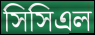
সিসিএল